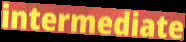
intermediate